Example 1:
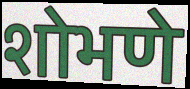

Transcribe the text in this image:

शोभणे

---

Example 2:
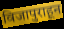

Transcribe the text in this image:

विजापुराहून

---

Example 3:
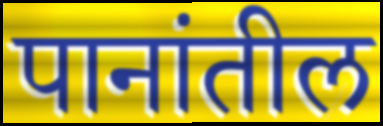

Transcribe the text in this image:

पानांतील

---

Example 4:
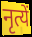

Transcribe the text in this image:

नृत्यें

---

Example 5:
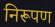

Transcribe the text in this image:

निरूपण